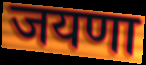
जयणा